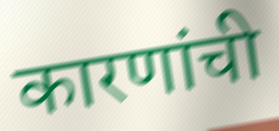
कारणांची